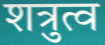
शत्रुत्व